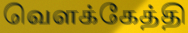
வெளக்கேத்தி